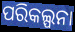
ପରିକଲ୍ପନା